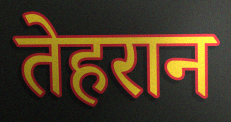
तेहरान